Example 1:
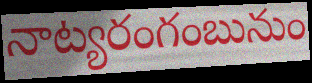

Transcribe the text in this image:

నాట్యరంగంబునుం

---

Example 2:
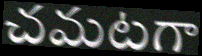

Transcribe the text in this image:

చమటగా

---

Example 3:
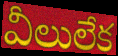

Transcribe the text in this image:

వీలులేక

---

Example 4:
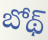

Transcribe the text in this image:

బోథ్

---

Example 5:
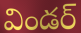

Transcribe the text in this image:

విండర్